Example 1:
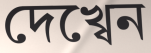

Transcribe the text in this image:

দেখ্বেন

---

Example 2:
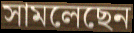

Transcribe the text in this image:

সামলেছেন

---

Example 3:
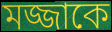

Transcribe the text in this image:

মজ্জাকে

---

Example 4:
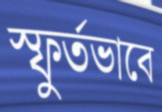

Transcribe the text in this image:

স্ফুর্তভাবে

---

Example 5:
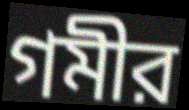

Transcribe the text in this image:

গমীর